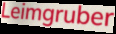
Leimgruber